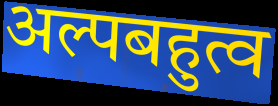
अल्पबहुत्व